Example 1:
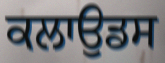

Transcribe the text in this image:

ਕਲਾਉਡਸ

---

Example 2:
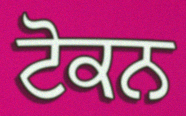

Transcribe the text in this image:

ਟੋਕਨ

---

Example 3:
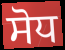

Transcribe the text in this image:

ਸੋਧ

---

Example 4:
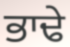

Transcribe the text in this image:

ਭਾਢੇ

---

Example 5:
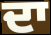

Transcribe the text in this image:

ਦਾ